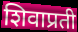
शिवाप्रती